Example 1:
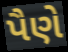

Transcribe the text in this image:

પૈણે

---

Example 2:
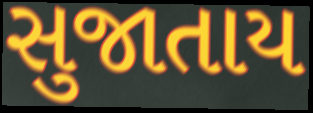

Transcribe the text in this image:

સુજાતાય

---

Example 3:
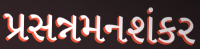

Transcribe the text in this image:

પ્રસન્નમનશંકર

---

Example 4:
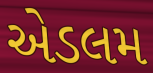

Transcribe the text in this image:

એડલમ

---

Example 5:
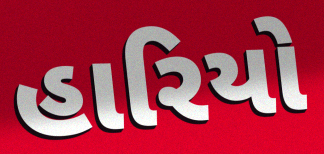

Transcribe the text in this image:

હારિયો